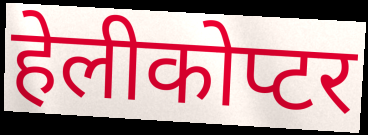
हेलीकोप्टर